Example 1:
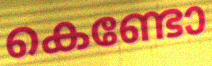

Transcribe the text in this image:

കെണ്ടോ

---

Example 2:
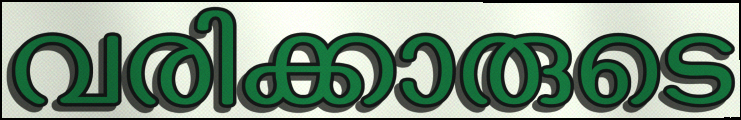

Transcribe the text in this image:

വരിക്കാരുടെ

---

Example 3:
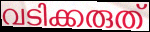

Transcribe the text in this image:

വടിക്കരുത്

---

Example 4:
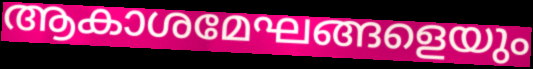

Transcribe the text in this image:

ആകാശമേഘങ്ങളെയും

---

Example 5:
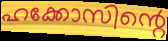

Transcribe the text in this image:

ഹക്കോസിന്റെ